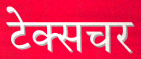
टेक्सचर